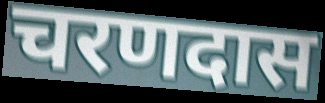
चरणदास